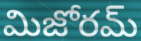
మిజోరమ్